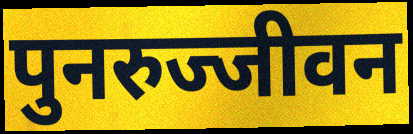
पुनरुज्जीवन